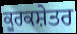
ਕੂਰਕਸ਼ੇਤਰ